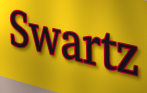
Swartz